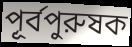
পূৰ্বপুৰুষক